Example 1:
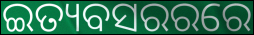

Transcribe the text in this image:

ଇତ୍ୟବସରରରେ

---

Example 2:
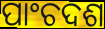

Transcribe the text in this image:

ପାଂଚଦଶ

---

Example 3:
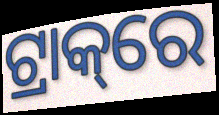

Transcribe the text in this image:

ଟ୍ରାକ୍‌ରେ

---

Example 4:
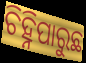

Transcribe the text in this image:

ଚିହ୍ନିପାରୁଛ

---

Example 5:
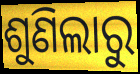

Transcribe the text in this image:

ଶୁଣିଲାରୁ